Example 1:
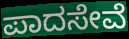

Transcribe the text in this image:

ಪಾದಸೇವೆ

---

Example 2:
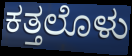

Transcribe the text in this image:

ಕತ್ತಲೊಳು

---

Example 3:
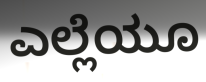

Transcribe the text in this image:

ಎಲ್ಲೆಯೂ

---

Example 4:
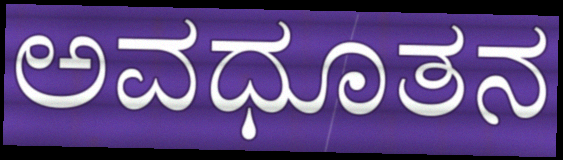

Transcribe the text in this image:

ಅವಧೂತನ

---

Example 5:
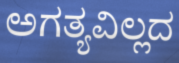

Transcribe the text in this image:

ಅಗತ್ಯವಿಲ್ಲದ